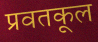
प्रवतकूल